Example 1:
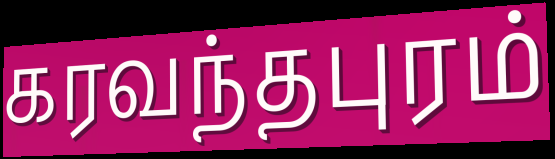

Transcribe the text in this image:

கரவந்தபுரம்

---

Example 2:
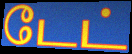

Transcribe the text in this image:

டேட்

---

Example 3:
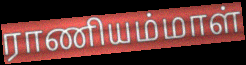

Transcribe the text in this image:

ராணியம்மாள்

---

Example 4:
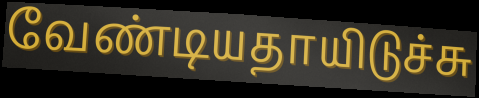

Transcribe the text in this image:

வேண்டியதாயிடுச்சு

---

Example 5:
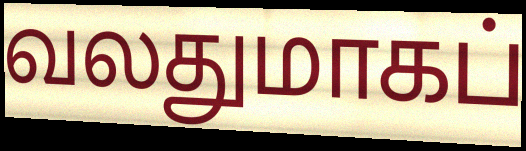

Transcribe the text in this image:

வலதுமாகப்